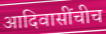
आदिवासींचीच